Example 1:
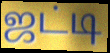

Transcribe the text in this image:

ஜட்டி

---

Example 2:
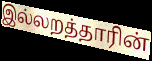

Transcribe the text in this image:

இல்லறத்தாரின்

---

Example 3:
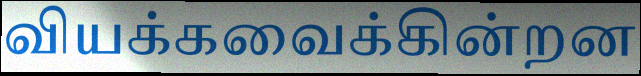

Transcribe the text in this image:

வியக்கவைக்கின்றன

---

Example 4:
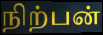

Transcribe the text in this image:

நிற்பன்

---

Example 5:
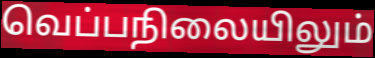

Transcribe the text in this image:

வெப்பநிலையிலும்